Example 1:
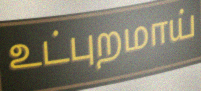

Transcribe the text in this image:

உட்புறமாய்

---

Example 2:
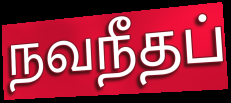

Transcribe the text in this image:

நவநீதப்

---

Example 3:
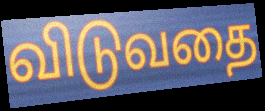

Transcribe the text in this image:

விடுவதை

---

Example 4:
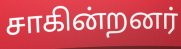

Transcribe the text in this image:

சாகின்றனர்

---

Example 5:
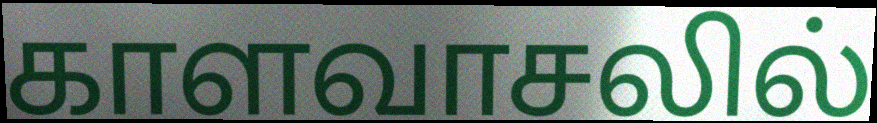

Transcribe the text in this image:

காளவாசலில்